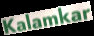
Kalamkar